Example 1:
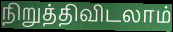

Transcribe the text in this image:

நிறுத்திவிடலாம்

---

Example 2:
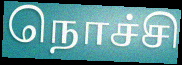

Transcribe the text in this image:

நொச்சி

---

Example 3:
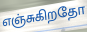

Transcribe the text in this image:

எஞ்சுகிறதோ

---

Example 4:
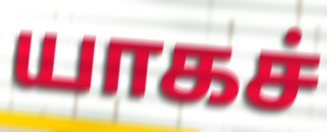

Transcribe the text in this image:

யாகச்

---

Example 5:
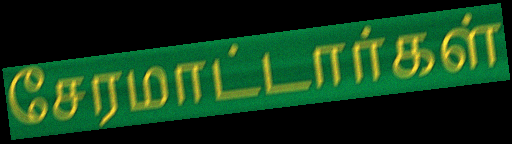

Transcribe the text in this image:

சேரமாட்டார்கள்